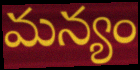
మన్యం